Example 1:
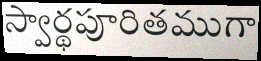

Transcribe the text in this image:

స్వార్థపూరితముగా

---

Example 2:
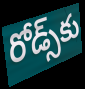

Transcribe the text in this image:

రోడ్స్‌కు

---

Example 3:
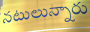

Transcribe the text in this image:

నటులున్నారు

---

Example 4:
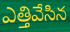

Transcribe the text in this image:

ఎత్తివేసిన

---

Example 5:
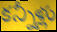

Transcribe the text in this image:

కన్నీళ్లు